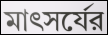
মাৎসর্যের